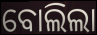
ବୋଲିଲା